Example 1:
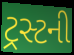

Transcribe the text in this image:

ટ્રસ્ટની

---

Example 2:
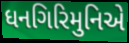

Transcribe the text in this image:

ધનગિરિમુનિએ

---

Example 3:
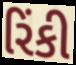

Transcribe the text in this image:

રિંકી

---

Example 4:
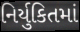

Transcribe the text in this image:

નિર્યુકિતમાં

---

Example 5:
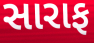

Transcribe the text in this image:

સારાફ